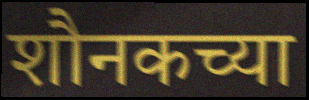
शौनकच्या